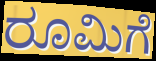
ರೂಮಿಗೆ